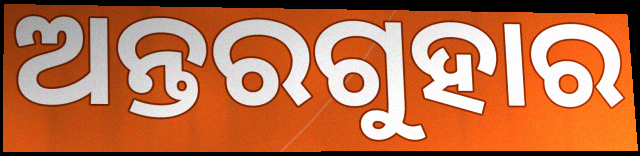
ଅନ୍ତରଗୁହାର